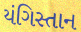
યંગિસ્તાન